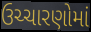
ઉચ્ચારણોમાં